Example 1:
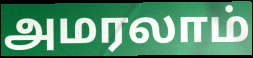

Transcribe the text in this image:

அமரலாம்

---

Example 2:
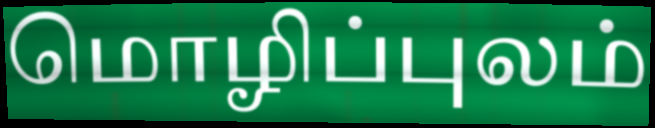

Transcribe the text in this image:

மொழிப்புலம்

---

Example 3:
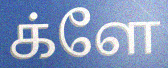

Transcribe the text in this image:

க்ளே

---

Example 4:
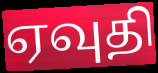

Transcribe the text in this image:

ஏவுதி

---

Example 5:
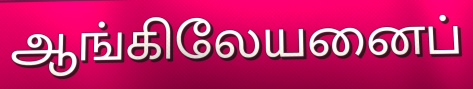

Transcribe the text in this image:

ஆங்கிலேயனைப்